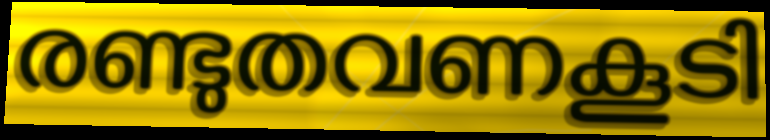
രണ്ടുതവണകൂടി